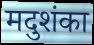
मदुशंका